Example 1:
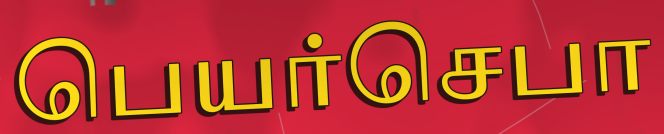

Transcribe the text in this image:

பெயர்செபா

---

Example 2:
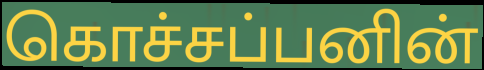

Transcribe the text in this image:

கொச்சப்பனின்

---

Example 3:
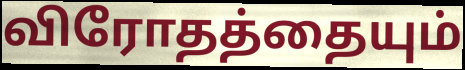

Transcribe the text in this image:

விரோதத்தையும்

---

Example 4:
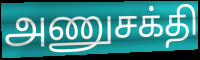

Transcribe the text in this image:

அணுசக்தி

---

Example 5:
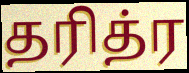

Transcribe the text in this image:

தரித்ர